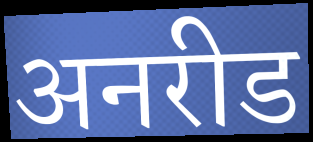
अनरीड